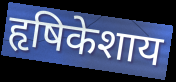
हृषिकेशाय